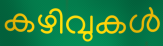
കഴിവുകൾ